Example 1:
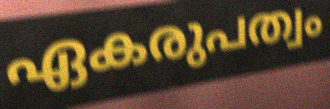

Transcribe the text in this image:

ഏകരുപത്വം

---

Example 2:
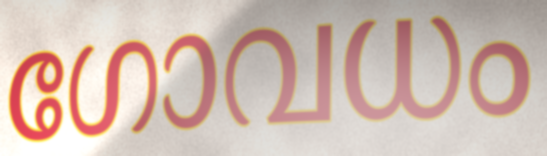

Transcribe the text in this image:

ഗോവധം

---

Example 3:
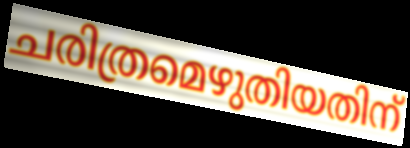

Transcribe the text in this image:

ചരിത്രമെഴുതിയതിന്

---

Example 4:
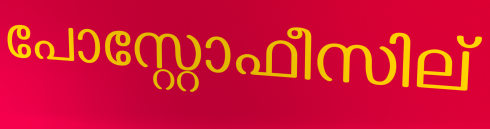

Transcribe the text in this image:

പോസ്റ്റോഫീസില്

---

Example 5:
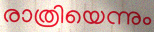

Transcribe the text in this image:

രാത്രിയെന്നും